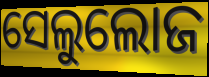
ସେଲୁଲୋଜ